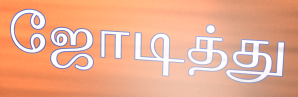
ஜோடித்து